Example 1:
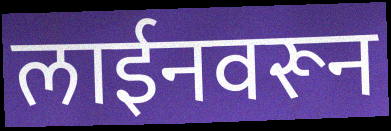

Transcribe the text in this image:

लाईनवरून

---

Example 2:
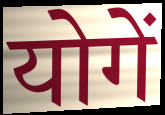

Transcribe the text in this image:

योगें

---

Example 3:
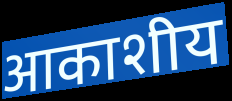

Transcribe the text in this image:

आकाशीय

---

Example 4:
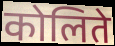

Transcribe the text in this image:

कोलिते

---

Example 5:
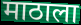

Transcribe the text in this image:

माठाला